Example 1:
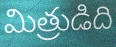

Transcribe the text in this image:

మిత్రుడిది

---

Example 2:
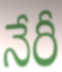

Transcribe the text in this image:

నేరీ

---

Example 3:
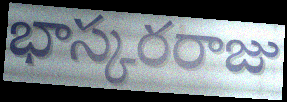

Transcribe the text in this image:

భాస్కరరాజు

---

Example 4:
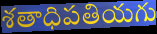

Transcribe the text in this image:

శతాధిపతియగు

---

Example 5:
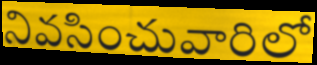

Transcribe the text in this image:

నివసించువారిలో